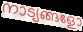
നാട്യങ്ങളോ